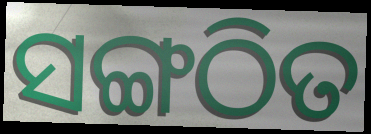
ସଙ୍ଗଠିତ